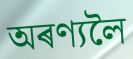
অৰণ্যলৈ